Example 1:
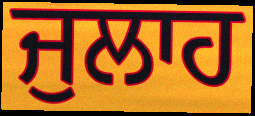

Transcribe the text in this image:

ਜੁਲਾਹ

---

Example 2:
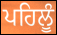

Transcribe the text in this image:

ਪਹਿਲੂੰ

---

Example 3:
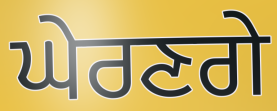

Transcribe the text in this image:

ਘੇਰਣਗੇ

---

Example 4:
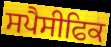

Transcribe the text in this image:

ਸਪੈਸੀਫਿਕ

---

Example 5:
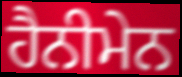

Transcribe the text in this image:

ਹੈਨੀਮੇਨ